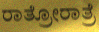
ರಾತ್ರೋರಾತ್ರೆ